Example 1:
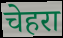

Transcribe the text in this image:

चेहरा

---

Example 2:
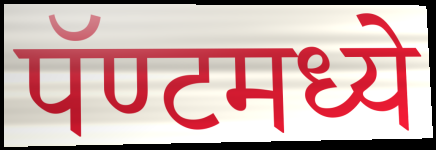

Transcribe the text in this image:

पॅण्टमध्ये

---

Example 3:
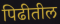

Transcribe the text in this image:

पिढीतील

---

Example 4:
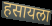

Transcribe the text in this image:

हसायला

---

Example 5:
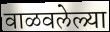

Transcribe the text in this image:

वाळवलेल्या